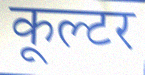
कूल्टर